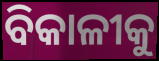
ବିକାଳୀକୁ